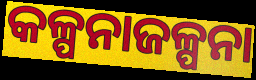
କଳ୍ପନାଜଳ୍ପନା